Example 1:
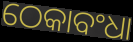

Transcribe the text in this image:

ଠେକାବଂଧା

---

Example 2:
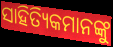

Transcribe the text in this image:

ସାହିତ୍ୟିକମାନଙ୍କୁ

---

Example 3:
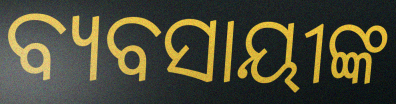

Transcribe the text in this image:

ବ୍ୟବସାୟୀଙ୍କ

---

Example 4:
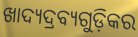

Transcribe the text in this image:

ଖାଦ୍ୟଦ୍ରବ୍ୟଗୁଡ଼ିକର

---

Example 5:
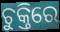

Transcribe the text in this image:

ଚୁକ୍ତିରେ